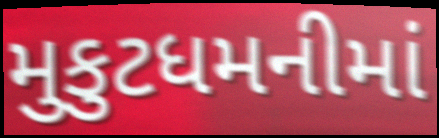
મુકુટધમનીમાં